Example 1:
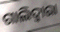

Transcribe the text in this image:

ଗାଲିଦ୍ଵାରା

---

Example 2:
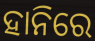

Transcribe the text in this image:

ହାନିରେ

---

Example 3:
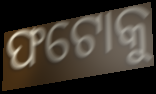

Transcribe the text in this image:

ଫଟୋକୁ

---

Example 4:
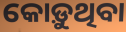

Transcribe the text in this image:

କୋଡ଼ୁଥିବା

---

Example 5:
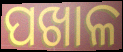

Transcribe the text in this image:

ପଖାଳ